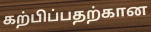
கற்பிப்பதற்கான